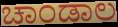
ಚಾಂಡಾಲ